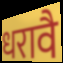
धरावै